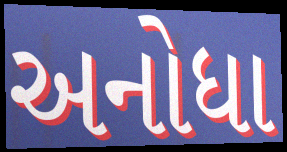
અનોધા